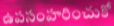
ఉపసంహరించుకో